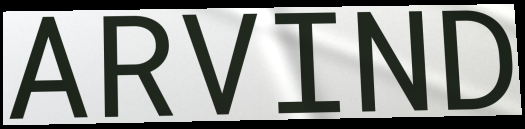
ARVIND